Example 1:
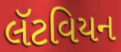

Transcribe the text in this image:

લૅટવિયન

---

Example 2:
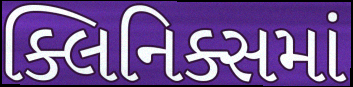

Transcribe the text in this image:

ક્લિનિક્સમાં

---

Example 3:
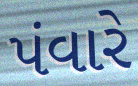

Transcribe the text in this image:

પંવારે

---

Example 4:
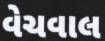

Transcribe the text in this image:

વેચવાલ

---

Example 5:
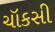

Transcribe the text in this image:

ચૉકસી